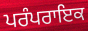
ਪਰੰਪਰਾਇਕ